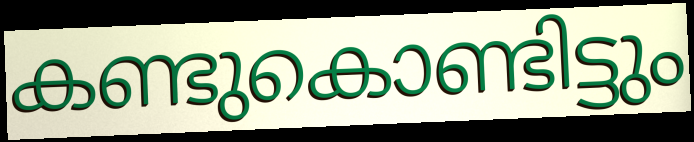
കണ്ടുകൊണ്ടിട്ടും